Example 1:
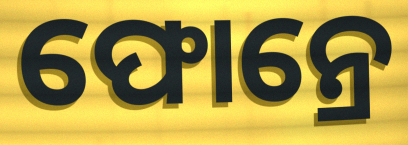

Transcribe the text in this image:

ଫୋନ୍ରେ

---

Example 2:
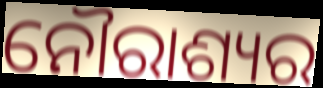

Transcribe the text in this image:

ନୌରାଶ୍ୟର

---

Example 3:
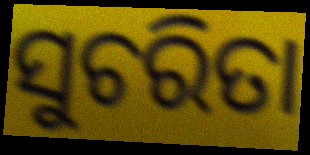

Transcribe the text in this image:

ସୁଚରିତା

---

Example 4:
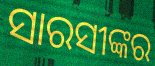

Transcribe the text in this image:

ସାରସୀଙ୍କର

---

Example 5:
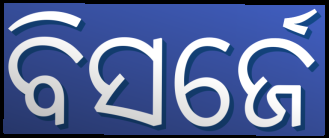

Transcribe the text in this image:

ବିସର୍ଜେ